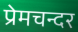
प्रेमचन्दर